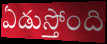
ఏడుస్తోంది